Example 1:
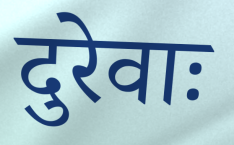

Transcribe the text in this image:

दुरेवाः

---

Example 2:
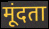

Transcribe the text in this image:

मूंदता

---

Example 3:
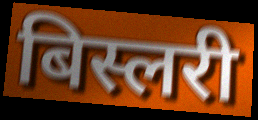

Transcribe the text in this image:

बिस्लरी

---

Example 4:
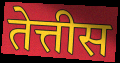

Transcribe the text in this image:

तेत्तीस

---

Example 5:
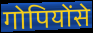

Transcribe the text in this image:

गोपियोंसे